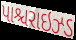
પાશ્ચરાઇઝ્ડ